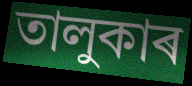
তালুকাৰ